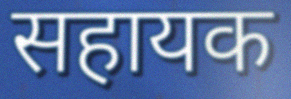
सहायक